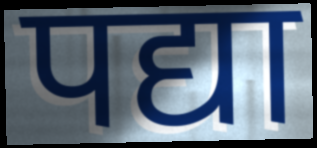
पद्या